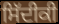
ਸਿੱਦੀਕੀ